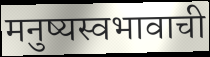
मनुष्यस्वभावाची